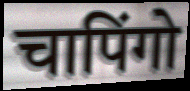
चापिंगो